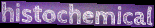
histochemical